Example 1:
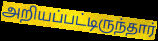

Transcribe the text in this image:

அறியப்பட்டிருந்தார்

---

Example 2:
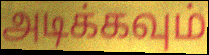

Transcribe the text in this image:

அடிக்கவும்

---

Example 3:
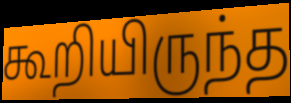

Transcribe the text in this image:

கூறியிருந்த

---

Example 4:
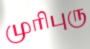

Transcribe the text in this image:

முரிபுரு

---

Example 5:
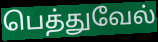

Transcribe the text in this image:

பெத்துவேல்